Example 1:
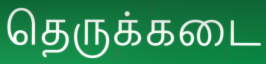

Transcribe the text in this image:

தெருக்கடை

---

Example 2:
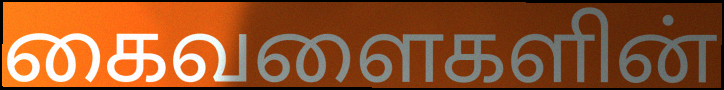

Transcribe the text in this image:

கைவளைகளின்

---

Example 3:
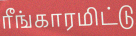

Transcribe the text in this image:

ரீங்காரமிட்டு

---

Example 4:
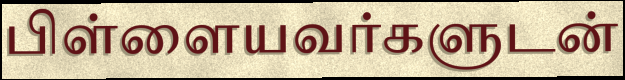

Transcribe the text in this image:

பிள்ளையவர்களுடன்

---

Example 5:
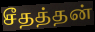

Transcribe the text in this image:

சீதத்தன்